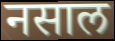
नसाल